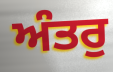
ਅੰਤਰੁ